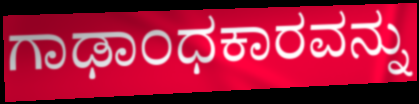
ಗಾಢಾಂಧಕಾರವನ್ನು